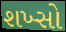
શખ્સો